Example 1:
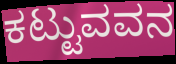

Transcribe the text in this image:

ಕಟ್ಟುವವನ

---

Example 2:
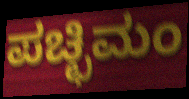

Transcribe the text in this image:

ಪಚ್ಛಿಮಂ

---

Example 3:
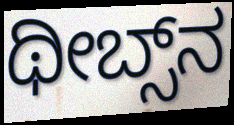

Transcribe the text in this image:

ಥೀಬ್ಸ್‌ನ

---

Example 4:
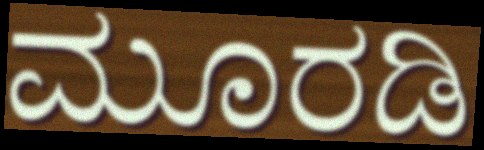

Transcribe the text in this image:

ಮೂರಡಿ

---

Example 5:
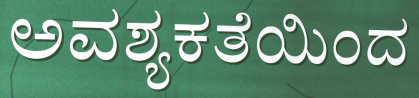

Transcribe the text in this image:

ಅವಶ್ಯಕತೆಯಿಂದ